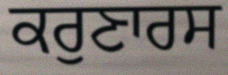
ਕਰੁਣਾਰਸ